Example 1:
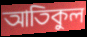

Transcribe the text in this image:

আতিকুল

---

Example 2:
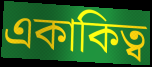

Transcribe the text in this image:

একাকিত্ব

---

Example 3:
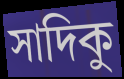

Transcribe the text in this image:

সাদিকু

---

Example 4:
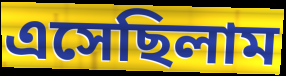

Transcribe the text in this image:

এসেছিলাম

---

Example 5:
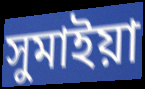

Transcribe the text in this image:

সুমাইয়া